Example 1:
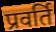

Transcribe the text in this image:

प्रवर्ति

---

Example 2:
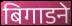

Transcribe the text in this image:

बिगाडने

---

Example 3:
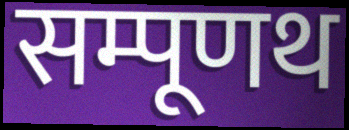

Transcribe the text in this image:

सम्पूणथ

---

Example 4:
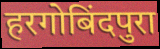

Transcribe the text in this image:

हरगोबिंदपुरा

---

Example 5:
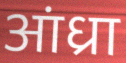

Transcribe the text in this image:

आंध्रा